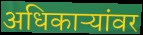
अधिकाऱ्यांवर